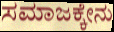
ಸಮಾಜಕ್ಕೇನು